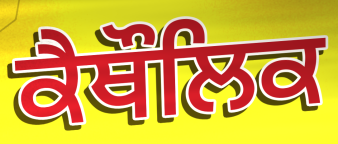
ਕੈਥੌਲਿਕ